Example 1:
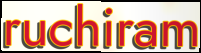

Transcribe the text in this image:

ruchiram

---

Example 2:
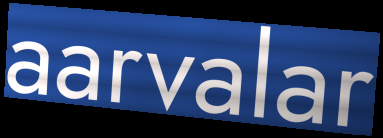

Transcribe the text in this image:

aarvalar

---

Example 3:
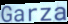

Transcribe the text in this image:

Garza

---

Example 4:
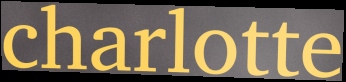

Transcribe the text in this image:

charlotte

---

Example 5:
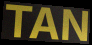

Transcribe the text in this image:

TAN